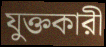
যুক্তকারী